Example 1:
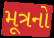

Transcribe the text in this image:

મૂત્રનો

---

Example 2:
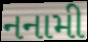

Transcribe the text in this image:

નનામી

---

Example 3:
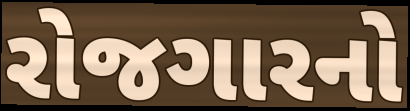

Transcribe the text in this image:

રોજગારનો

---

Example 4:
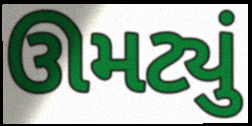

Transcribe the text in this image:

ઊમટ્યું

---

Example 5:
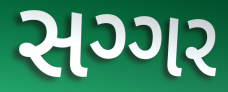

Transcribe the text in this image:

સગ્ગર